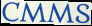
CMMS